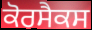
ਕੋਰਸੈਕਸ